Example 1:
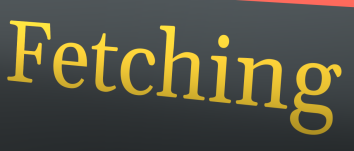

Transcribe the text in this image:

Fetching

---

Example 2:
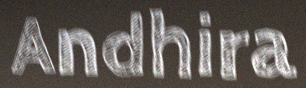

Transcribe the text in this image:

Andhira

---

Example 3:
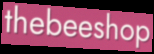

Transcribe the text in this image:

thebeeshop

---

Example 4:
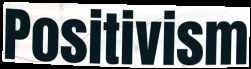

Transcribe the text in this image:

Positivism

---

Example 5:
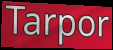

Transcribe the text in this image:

Tarpor